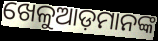
ଖେଳୁଆଡ଼ମାନଙ୍କ